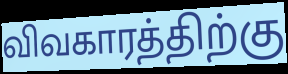
விவகாரத்திற்கு